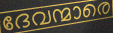
ദേവന്മാരെ